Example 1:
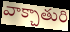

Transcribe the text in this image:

వాక్చాతురి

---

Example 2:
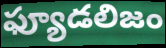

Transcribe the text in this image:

ఫ్యూడలిజం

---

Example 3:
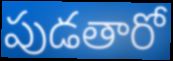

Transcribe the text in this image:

పుడతారో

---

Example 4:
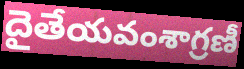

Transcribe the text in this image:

దైతేయవంశాగ్రణీ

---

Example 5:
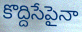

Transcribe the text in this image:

కొద్దిసేపైనా